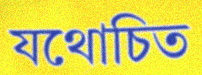
যথোচিত